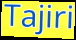
Tajiri